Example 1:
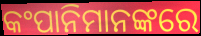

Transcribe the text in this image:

କଂପାନିମାନଙ୍କରେ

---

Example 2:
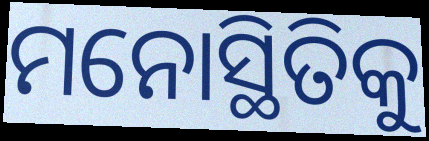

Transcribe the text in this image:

ମନୋସ୍ଥିତିକୁ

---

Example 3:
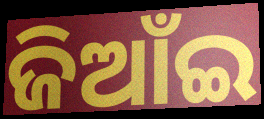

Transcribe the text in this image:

ଜିଆଁଇ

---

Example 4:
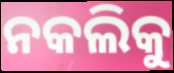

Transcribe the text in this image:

ନକଲିକୁ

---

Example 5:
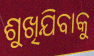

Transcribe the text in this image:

ଶୁଖିଯିବାକୁ